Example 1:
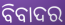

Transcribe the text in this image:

ବିବାଦର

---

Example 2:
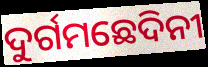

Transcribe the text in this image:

ଦୁର୍ଗମଛେଦିନୀ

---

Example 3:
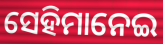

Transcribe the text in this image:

ସେହିମାନେଇ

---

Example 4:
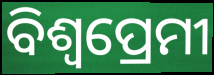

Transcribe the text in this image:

ବିଶ୍ଵପ୍ରେମୀ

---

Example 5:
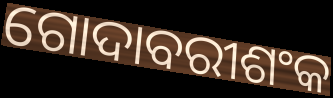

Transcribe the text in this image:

ଗୋଦାବରୀଶଂକ